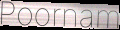
Poornam